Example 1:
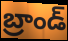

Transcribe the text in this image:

బ్రాండ్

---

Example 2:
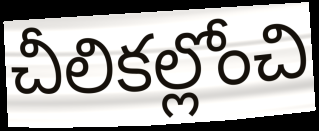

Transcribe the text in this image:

చీలికల్లోంచి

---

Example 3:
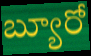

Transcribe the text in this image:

బ్యూరో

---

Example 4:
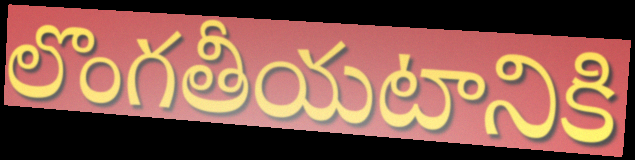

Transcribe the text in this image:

లొంగతీయటానికి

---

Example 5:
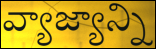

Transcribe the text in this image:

వ్యాజ్యాన్ని